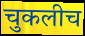
चुकलीच